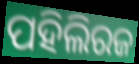
ପହିଲିରଜ